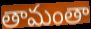
తామంతా